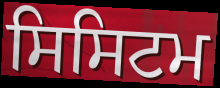
ਸਿਸਿਟਮ